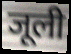
जूली